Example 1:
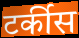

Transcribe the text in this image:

टर्कीस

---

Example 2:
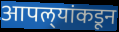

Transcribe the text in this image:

आपल्यांकडून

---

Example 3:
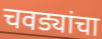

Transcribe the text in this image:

चवड्यांचा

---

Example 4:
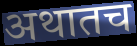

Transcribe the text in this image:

अथातच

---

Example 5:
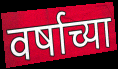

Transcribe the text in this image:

वर्षाच्या